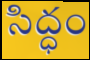
సిద్ధం